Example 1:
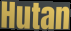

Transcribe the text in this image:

Hutan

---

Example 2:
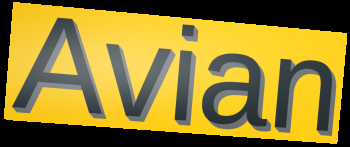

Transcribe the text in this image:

Avian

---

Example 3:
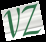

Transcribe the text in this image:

vz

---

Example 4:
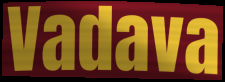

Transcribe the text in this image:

Vadava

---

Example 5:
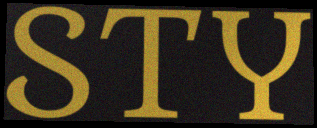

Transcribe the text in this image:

STY